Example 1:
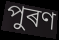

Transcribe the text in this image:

পুৰণ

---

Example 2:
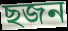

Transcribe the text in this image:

ছজন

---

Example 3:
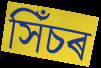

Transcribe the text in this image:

সিঁচৰ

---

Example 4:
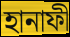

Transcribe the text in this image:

হানাফী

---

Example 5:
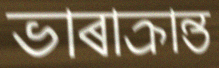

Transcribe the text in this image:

ভাৰাক্ৰান্ত